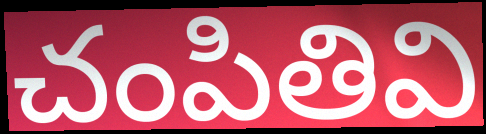
చంపితివి